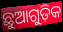
ଛୁଆଗୁଡ଼ିକ